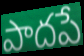
పాదపే